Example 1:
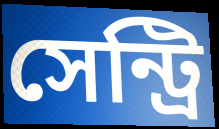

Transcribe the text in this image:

সেন্ট্রি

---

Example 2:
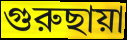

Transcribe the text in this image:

গুরুছায়া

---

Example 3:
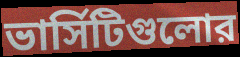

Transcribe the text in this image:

ভার্সিটিগুলোর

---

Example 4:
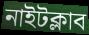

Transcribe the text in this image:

নাইটক্লাব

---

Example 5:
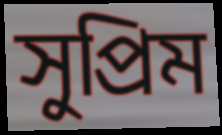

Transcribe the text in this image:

সুপ্রিম